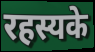
रहस्यके